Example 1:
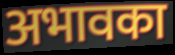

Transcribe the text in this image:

अभावका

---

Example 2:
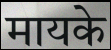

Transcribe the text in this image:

मायके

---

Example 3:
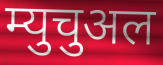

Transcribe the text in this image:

म्युचुअल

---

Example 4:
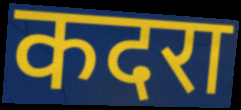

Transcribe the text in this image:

कदरा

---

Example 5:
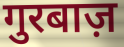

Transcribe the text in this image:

गुरबाज़